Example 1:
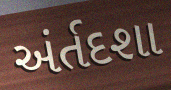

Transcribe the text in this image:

અંર્તદશા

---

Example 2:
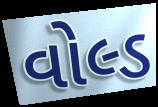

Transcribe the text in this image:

વોલ્ડ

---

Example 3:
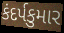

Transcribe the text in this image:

કંદર્પકુમાર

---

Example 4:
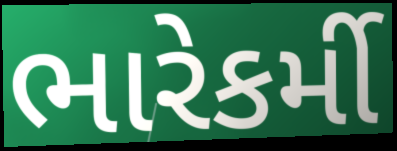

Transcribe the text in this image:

ભારેકર્મી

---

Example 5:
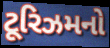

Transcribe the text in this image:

ટૂરિઝમનો